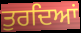
ਤੁਰਦਿਆਂ